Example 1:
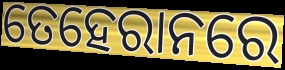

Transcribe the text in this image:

ତେହେରାନରେ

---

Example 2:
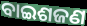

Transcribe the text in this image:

ବାଇଶଜଣ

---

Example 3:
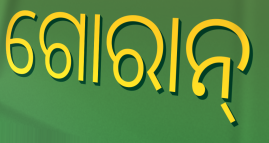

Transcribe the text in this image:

ଗୋରାନ୍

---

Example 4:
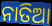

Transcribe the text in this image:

ନାତିଆ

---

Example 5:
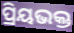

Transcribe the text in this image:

ପ୍ରିୟଭକ୍ତ